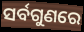
ସର୍ବଗୁଣରେ